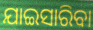
ଯାଇସାରିବା